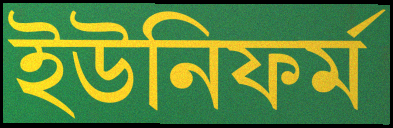
ইউনিফৰ্ম